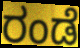
ರಂಡೆ